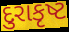
દુરાકૃષ્ટ